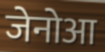
जेनोआ